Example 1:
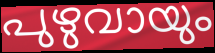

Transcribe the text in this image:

പുഴുവായും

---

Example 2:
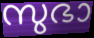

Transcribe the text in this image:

സുഭാ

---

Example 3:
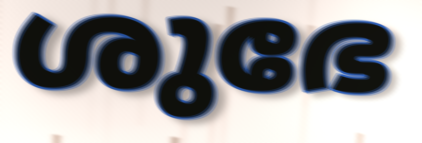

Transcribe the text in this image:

ശുഭേ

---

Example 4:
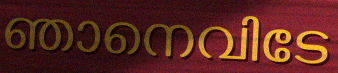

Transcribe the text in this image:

ഞാനെവിടേ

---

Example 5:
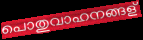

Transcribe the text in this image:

പൊതുവാഹനങ്ങള്